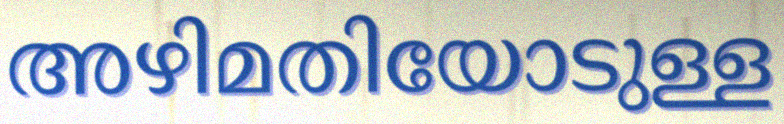
അഴിമതിയോടുള്ള